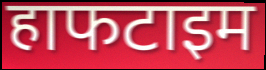
हाफटाइम